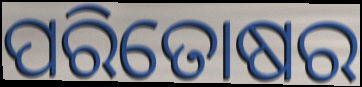
ପରିତୋଷର